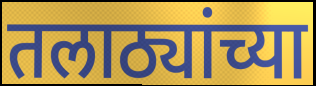
तलाठ्यांच्या